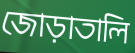
জোড়াতালি